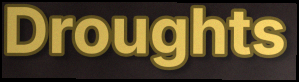
Droughts